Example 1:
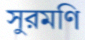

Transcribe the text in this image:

সুরমণি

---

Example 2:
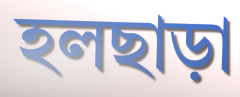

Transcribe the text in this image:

হলছাড়া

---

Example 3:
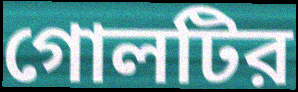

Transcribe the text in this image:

গোলটির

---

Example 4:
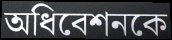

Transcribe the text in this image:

অধিবেশনকে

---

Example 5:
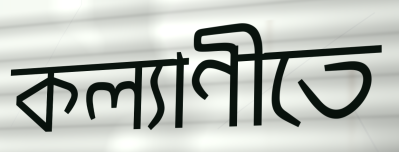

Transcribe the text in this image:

কল্যাণীতে